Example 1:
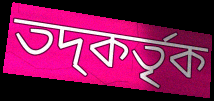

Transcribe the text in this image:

তদ্‌কর্তৃক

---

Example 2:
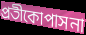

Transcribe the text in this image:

প্রতীকোপাসনা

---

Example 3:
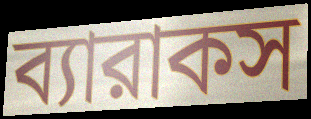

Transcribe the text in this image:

ব্যারাকস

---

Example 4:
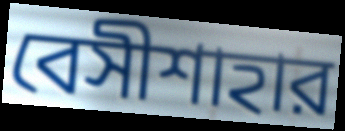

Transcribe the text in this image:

বেসীশাহার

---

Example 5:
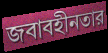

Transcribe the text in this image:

জবাবহীনতার